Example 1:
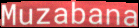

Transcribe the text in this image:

Muzabana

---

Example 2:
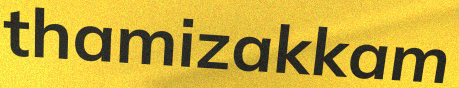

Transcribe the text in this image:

thamizakkam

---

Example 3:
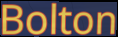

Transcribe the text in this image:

Bolton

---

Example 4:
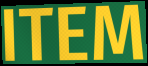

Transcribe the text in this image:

ITEM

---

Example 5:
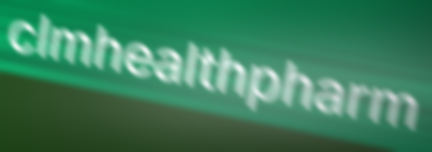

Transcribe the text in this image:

clmhealthpharm